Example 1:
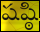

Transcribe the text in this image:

షష్ఠి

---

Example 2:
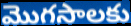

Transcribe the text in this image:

మొగసాలకు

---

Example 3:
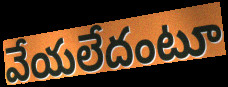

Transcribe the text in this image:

వేయలేదంటూ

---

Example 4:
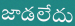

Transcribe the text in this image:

జాడలేదు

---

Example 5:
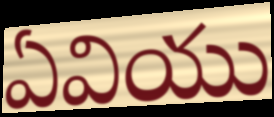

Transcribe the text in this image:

ఏవియు